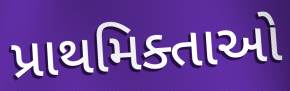
પ્રાથમિક્તાઓ